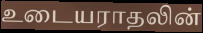
உடையராதலின்